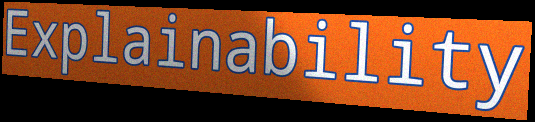
Explainability